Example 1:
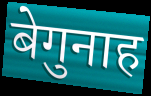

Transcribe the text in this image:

बेगुनाह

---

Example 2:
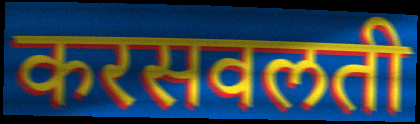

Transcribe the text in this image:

करसवलती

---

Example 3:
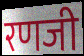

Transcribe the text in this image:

रणजी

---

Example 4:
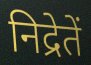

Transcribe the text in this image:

निद्रेतें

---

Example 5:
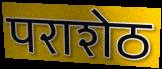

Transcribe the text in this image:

पराशेठ